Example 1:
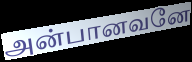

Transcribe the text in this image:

அன்பானவனே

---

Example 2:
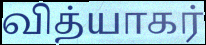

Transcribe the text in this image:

வித்யாகர்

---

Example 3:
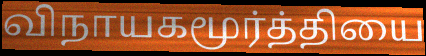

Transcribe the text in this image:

விநாயகமூர்த்தியை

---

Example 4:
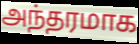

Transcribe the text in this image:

அந்தரமாக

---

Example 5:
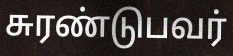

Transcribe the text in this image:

சுரண்டுபவர்